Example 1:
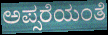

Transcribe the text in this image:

ಅಪ್ಸರೆಯಂತೆ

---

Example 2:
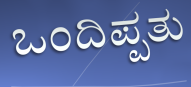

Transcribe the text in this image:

ಒಂದಿಪ್ಪತು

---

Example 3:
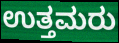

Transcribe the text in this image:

ಉತ್ತಮರು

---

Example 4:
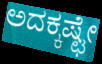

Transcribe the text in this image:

ಅದಕ್ಕಷ್ಟೇ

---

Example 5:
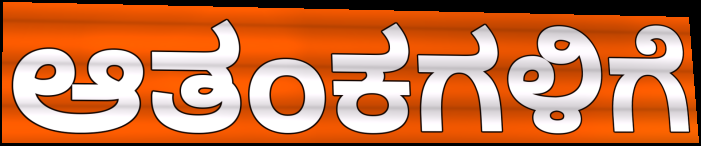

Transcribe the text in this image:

ಆತಂಕಗಳಿಗೆ